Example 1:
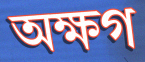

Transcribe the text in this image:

অক্ষগ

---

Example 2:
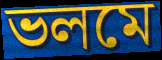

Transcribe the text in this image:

ভলমে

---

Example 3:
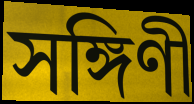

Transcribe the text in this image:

সঙ্গিণী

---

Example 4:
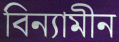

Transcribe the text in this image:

বিন্যামীন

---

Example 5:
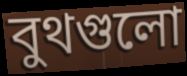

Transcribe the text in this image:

বুথগুলো